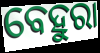
ବେହୁରା